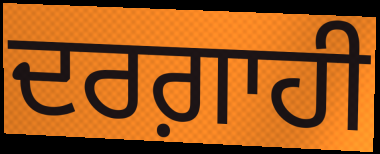
ਦਰਗ਼ਾਹੀ